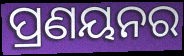
ପ୍ରଣୟନର